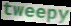
tweepy